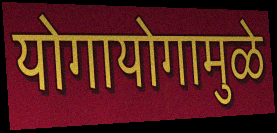
योगायोगामुळे